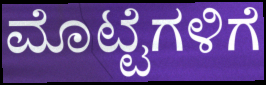
ಮೊಟ್ಟೆಗಳಿಗೆ